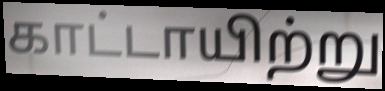
காட்டாயிற்று